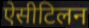
ऐसीटिलन